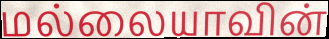
மல்லையாவின்